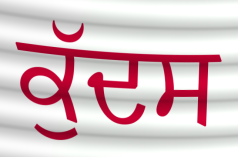
ਕੁੱਦਸ